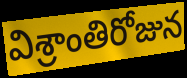
విశ్రాంతిరోజున